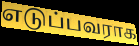
எடுப்பவராக